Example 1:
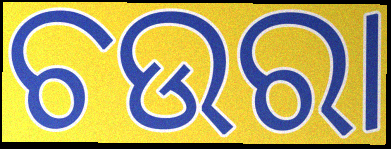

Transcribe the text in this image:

ଚଉରା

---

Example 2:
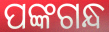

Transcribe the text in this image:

ପଙ୍କଗନ୍ଧ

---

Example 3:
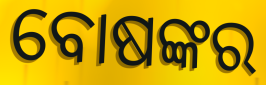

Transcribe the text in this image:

ବୋଷଙ୍କର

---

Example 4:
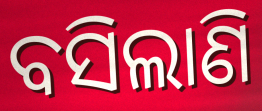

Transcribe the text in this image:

ବସିଲାଣି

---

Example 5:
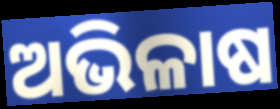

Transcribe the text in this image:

ଅଭିଳାଷ